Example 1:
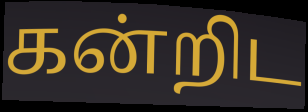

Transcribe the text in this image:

கன்றிட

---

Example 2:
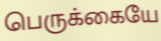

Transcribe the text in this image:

பெருக்கையே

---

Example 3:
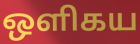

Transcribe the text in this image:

ஒளிகய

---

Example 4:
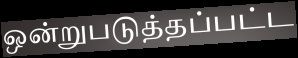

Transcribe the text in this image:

ஒன்றுபடுத்தப்பட்ட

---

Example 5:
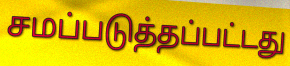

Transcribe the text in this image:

சமப்படுத்தப்பட்டது